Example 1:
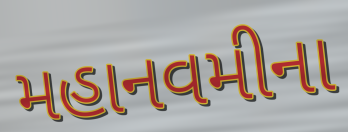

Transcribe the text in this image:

મહાનવમીના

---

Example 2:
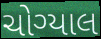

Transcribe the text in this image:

ચોગ્યાલ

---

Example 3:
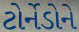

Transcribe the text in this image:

ટોર્નેડોને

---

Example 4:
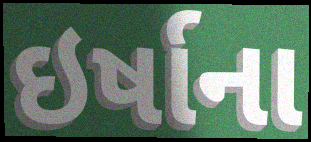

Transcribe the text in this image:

ઇર્ષાના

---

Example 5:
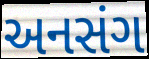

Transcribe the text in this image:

અનસંગ